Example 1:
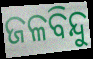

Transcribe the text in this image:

ଜଳବିନ୍ଦୁ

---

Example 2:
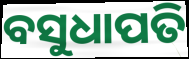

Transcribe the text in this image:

ବସୁଧାପତି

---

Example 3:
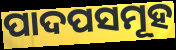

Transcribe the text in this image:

ପାଦପସମୂହ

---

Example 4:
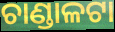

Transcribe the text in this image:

ଚାଣ୍ଡାଳଟା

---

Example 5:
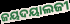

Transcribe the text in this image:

ଜୟଦୟାଲଜୀ